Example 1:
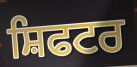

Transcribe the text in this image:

ਸ਼ਿਫਟਰ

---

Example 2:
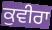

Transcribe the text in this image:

ਕੁਵੀਰਾ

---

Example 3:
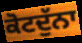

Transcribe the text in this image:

ਕੋਟਦੁੱਨਾ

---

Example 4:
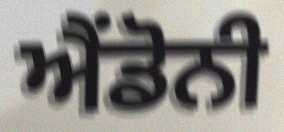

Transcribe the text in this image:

ਐਂਡੋਨੀ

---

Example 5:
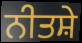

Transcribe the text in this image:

ਨੀਤਸ਼ੇ